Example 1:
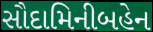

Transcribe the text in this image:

સૌદામિનીબહેન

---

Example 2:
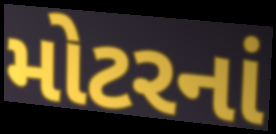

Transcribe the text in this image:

મોટરનાં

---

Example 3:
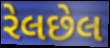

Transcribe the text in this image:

રેલછેલ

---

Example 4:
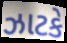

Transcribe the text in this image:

ઝાટકે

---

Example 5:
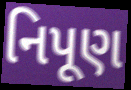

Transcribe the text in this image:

નિપૂણ